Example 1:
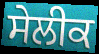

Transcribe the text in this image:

ਸੇਲੀਕ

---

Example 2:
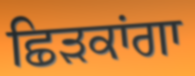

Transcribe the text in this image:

ਛਿੜਕਾਂਗਾ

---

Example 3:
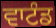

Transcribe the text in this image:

ਵਾਟੰਡ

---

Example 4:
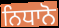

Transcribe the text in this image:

ਨਿਧਾਨੋ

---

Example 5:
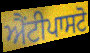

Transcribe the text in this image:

ਐਂਟੀਪਾਸਟੋ